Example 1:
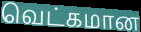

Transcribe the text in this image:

வெட்கமான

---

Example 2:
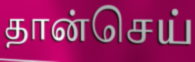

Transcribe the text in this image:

தான்செய்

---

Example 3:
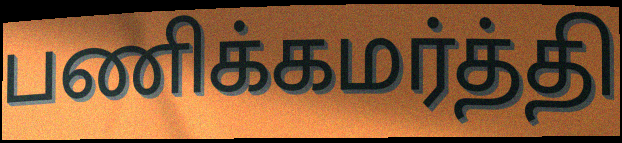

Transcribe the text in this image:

பணிக்கமர்த்தி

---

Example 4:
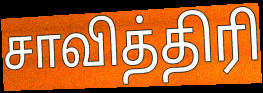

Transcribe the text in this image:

சாவித்திரி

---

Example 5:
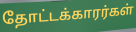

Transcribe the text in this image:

தோட்டக்காரர்கள்